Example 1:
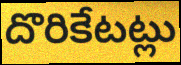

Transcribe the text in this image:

దొరికేటట్లు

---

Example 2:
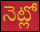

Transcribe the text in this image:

నెట్లో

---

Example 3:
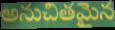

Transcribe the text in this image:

అనుచితమైన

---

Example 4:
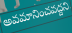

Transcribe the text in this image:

అవమానించవద్దని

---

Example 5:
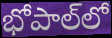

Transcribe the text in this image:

భోపాల్‌లో